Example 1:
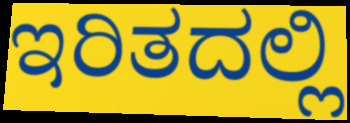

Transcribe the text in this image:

ಇರಿತದಲ್ಲಿ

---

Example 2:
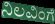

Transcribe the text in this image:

ನಿಲವಿಂಗೆ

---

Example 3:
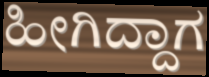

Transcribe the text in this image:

ಹೀಗಿದ್ದಾಗ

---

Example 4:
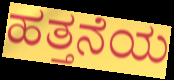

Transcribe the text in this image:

ಹತ್ತನೆಯ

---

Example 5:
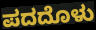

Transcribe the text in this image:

ಪದದೊಳು